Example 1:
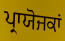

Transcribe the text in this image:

ਪ੍ਰਾਯੋਜਕਾਂ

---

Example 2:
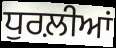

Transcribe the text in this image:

ਧੁਰਲ਼ੀਆਂ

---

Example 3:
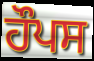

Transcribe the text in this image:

ਹੌਪਸ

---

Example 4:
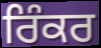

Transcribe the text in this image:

ਰਿੰਕਰ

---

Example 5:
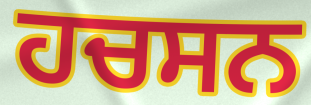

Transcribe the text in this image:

ਹਚਸਨ